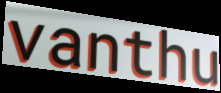
vanthu